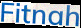
Fitnah